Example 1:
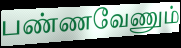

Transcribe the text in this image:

பண்ணவேணும்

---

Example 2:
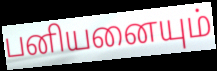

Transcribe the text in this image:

பனியனையும்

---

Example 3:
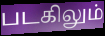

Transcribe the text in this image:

படகிலும்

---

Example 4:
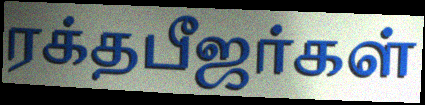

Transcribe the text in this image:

ரக்தபீஜர்கள்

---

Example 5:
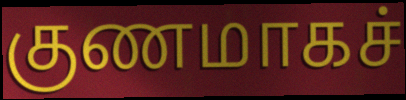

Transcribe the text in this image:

குணமாகச்